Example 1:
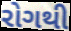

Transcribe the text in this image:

રોગથી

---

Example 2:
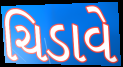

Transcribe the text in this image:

ચિડાવે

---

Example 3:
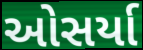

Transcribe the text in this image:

ઓસર્યા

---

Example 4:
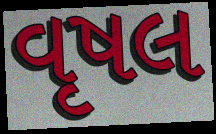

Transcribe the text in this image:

વૃષલ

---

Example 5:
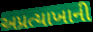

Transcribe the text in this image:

અપ્રત્યાખાની